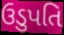
ઉડુપતિ